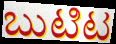
ಬುಟಿಟ